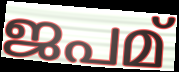
ജപമ്